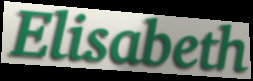
Elisabeth